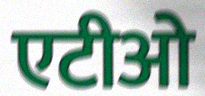
एटीओ